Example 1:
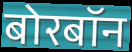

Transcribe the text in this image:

बोरबॉन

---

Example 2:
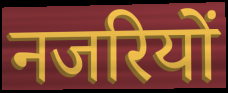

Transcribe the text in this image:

नजरियों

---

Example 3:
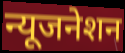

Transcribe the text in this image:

न्यूजनेशन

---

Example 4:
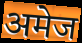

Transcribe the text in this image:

अमेज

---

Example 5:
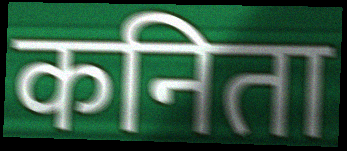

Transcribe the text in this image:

कनिता